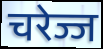
चरेज्ज